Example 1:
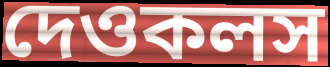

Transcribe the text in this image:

দেওকলস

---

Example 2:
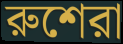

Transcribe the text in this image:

রুশেরা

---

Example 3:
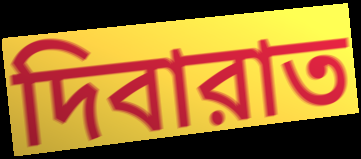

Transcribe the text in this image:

দিবারাত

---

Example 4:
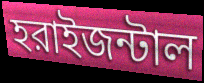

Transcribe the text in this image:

হরাইজন্টাল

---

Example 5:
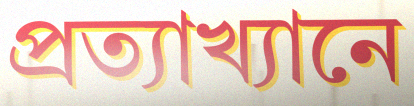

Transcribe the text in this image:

প্রত্যাখ্যানে